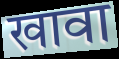
खावा